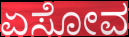
ಏಸೋವ